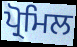
ਪ੍ਰੋਮਿਲ